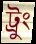
ট্রুং